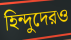
হিন্দুদেরও